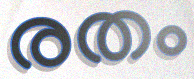
രതം